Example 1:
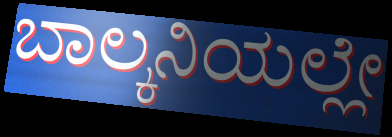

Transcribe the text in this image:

ಬಾಲ್ಕನಿಯಲ್ಲೇ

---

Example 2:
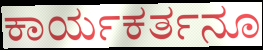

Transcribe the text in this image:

ಕಾರ್ಯಕರ್ತನೂ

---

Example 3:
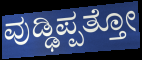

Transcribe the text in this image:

ವುಡ್ಢಿಪ್ಪತ್ತೋ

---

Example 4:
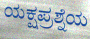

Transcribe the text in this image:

ಯಕ್ಷಪ್ರಶ್ನೆಯ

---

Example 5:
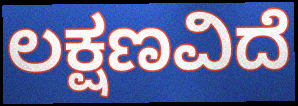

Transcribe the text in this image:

ಲಕ್ಷಣವಿದೆ